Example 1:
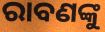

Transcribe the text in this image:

ରାବଣଙ୍କୁ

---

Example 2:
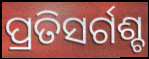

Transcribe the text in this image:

ପ୍ରତିସର୍ଗଶ୍ଚ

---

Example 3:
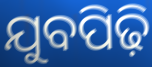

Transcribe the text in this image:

ଯୁବପିଢ଼ି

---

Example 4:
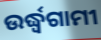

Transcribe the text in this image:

ଉର୍ଦ୍ଧ୍ୱଗାମୀ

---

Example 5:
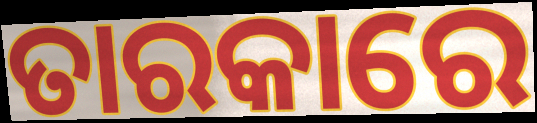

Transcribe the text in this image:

ତାରକାରେ